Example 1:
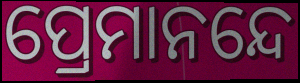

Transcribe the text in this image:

ପ୍ରେମାନନ୍ଦେ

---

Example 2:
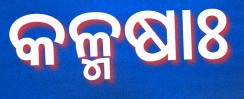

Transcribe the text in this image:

କଳ୍ମଷାଃ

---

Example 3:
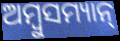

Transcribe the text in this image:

ଅମ୍ବୁସମ୍ୟାନ୍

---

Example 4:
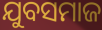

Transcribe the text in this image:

ଯୁବସମାଜ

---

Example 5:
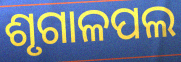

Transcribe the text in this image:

ଶୃଗାଳପଲ